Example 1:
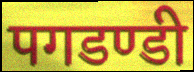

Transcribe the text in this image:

पगडण्डी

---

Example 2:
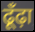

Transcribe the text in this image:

ढूँढ़ा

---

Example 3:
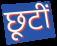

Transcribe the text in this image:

छूटीं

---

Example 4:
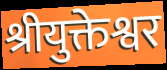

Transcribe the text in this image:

श्रीयुक्तेश्वर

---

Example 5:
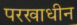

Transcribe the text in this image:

परखाधीन